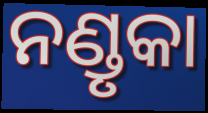
ନଣ୍ଡୃକା